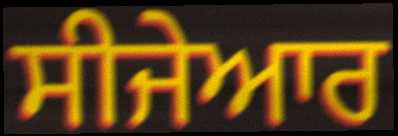
ਸੀਜੇਆਰ